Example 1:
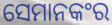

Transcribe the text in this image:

ସେମାନକଂର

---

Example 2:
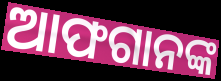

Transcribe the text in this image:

ଆଫଗାନଙ୍କ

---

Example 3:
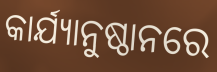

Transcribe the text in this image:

କାର୍ଯ୍ୟାନୁଷ୍ଠାନରେ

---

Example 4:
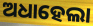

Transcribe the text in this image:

ଅଧାହେଲା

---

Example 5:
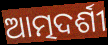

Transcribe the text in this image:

ଆତ୍ମଦର୍ଶୀ